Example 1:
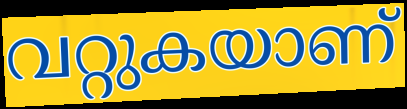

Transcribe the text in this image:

വറ്റുകയാണ്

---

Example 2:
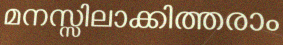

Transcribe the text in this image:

മനസ്സിലാക്കിത്തരാം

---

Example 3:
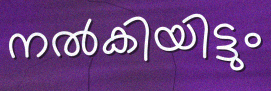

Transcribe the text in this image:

നൽകിയിട്ടും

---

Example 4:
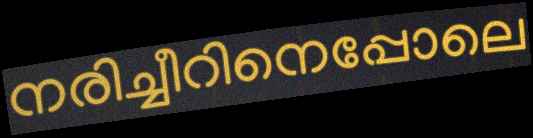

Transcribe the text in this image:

നരിച്ചീറിനെപ്പോലെ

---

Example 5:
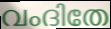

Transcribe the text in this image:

വംദിതേ